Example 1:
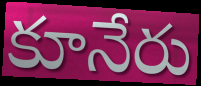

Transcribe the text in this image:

కూనేరు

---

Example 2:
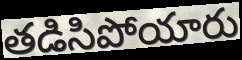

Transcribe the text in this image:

తడిసిపోయారు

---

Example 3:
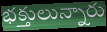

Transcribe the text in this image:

భక్తులున్నారు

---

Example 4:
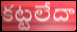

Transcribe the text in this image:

కట్టలేదా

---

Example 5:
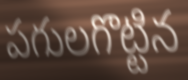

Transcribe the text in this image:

పగులగొట్టిన